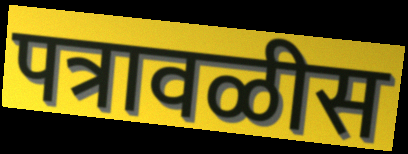
पत्रावळीस